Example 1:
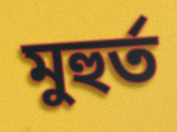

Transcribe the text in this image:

মুহুৰ্ত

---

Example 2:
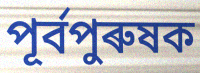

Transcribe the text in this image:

পূৰ্বপুৰুষক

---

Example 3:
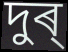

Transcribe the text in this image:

দুৰ্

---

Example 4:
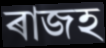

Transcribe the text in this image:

ৰাজহ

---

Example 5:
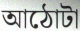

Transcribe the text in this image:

আঠোটা